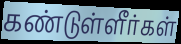
கண்டுள்ளீர்கள்